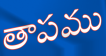
తాపము